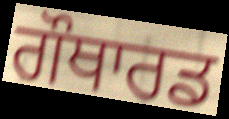
ਗੌਥਾਰਡ